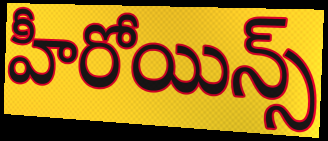
హీరోయిన్స్